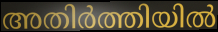
അതിർത്തിയിൽ